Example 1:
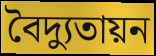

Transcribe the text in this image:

বৈদ্যুতায়ন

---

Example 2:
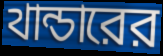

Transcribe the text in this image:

থান্ডারের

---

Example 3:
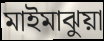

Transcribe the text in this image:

মাইমাঝুয়া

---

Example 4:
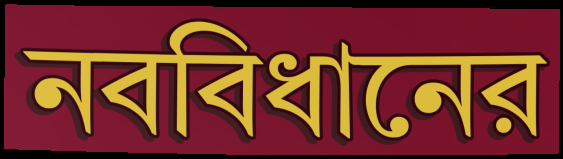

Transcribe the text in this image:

নববিধানের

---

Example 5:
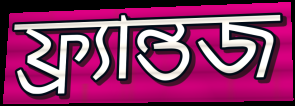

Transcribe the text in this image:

ফ্র্যান্তজ